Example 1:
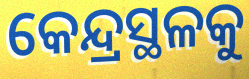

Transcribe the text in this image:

କେନ୍ଦ୍ରସ୍ଥଳକୁ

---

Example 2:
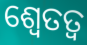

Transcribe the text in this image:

ଶ୍ୱେତତ୍ଵ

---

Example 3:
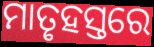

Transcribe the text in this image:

ମାତୃହସ୍ତରେ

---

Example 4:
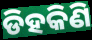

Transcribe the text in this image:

ଡିହକିଣି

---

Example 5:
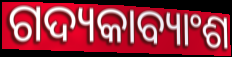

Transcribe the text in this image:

ଗଦ୍ୟକାବ୍ୟାଂଶ